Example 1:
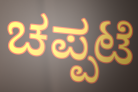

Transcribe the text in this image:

ಚಪ್ಪಟೆ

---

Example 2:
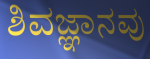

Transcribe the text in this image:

ಶಿವಜ್ಞಾನವು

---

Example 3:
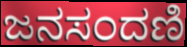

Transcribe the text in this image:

ಜನಸಂದಣಿ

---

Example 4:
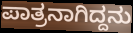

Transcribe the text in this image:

ಪಾತ್ರನಾಗಿದ್ದನು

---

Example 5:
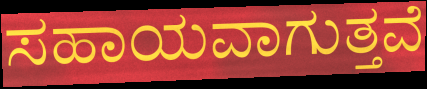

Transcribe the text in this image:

ಸಹಾಯವಾಗುತ್ತವೆ